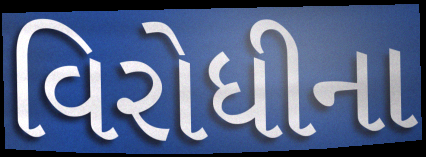
વિરોધીના